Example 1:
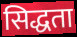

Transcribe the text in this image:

सिद्धता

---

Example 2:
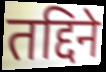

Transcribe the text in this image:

तद्दिने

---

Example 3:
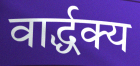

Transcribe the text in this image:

वार्द्धक्य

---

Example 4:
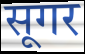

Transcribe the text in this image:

सूगर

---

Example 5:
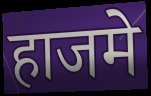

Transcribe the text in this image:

हाजमे